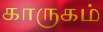
காருகம்